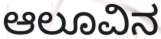
ಆಲೂವಿನ